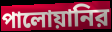
পালোয়ানির